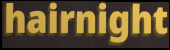
hairnight